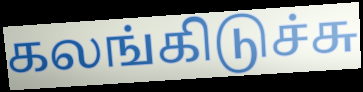
கலங்கிடுச்சு